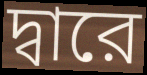
দ্বারে